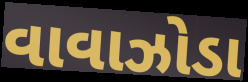
વાવાઝોડા